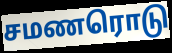
சமணரொடு